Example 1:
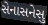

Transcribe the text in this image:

સેનાસનેસુ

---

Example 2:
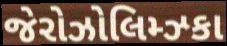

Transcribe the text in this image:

જેરોઝોલિમ્ઝ્કા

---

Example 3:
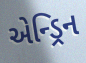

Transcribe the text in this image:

એન્ડ્રિન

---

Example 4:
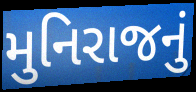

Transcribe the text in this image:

મુનિરાજનું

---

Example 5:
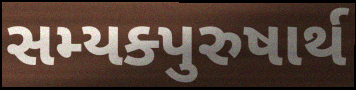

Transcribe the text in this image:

સમ્યક્પુરુષાર્થ